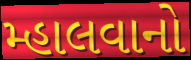
મ્હાલવાનો